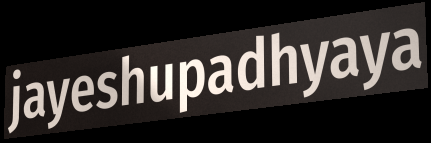
jayeshupadhyaya